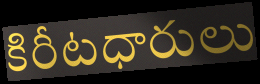
కిరీటధారులు